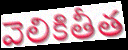
వెలికితీత